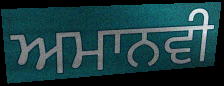
ਅਮਾਨਵੀ